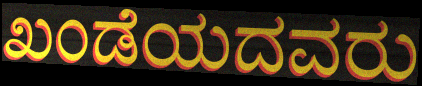
ಖಂಡೆಯದವರು